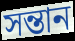
সন্তান